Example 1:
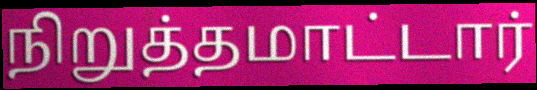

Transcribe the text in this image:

நிறுத்தமாட்டார்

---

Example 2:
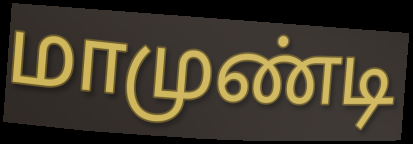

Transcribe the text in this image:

மாமுண்டி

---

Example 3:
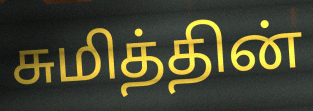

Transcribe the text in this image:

சுமித்தின்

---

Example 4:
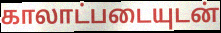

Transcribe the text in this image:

காலாட்படையுடன்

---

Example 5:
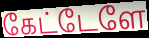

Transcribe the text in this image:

கேட்டேளே